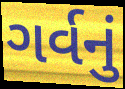
ગર્વનું